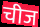
चीज